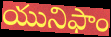
యునిఫాం